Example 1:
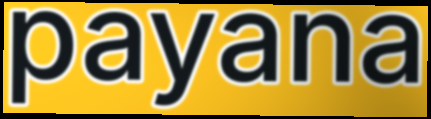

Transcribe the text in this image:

payana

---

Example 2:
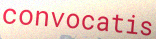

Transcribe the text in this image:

convocatis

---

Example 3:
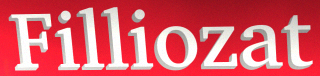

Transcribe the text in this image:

Filliozat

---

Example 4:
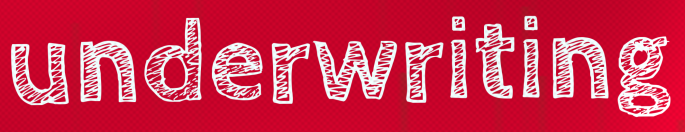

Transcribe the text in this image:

underwriting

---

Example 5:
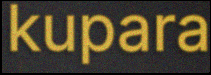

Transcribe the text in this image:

kupara